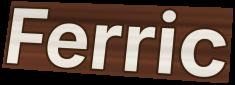
Ferric